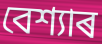
বেশ্যাৰ